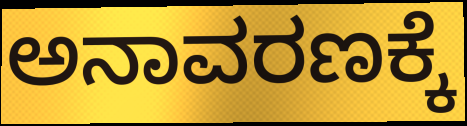
ಅನಾವರಣಕ್ಕೆ